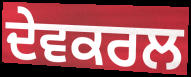
ਦੇਵਕਰਲ